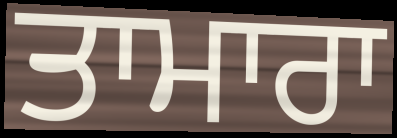
ਤਾਮਾਰਾ